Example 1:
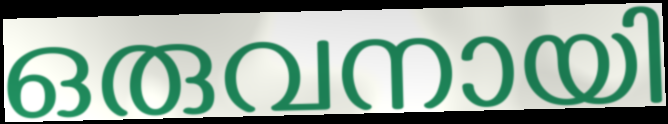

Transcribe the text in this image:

ഒരുവനായി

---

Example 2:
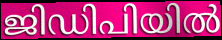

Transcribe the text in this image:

ജിഡിപിയിൽ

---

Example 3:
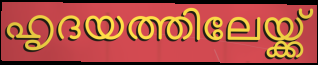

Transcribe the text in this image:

ഹൃദയത്തിലേയ്ക്ക്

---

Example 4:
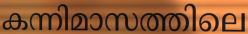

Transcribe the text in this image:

കന്നിമാസത്തിലെ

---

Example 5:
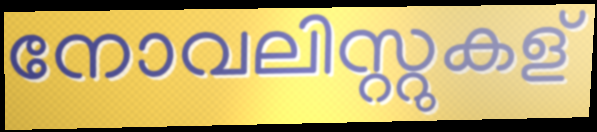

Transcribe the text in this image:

നോവലിസ്റ്റുകള്